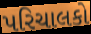
પરિચાલકો